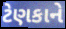
ટેણકાને